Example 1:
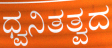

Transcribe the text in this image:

ಧ್ವನಿತತ್ವದ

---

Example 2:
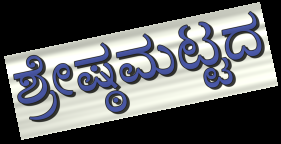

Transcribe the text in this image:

ಶ್ರೇಷ್ಠಮಟ್ಟದ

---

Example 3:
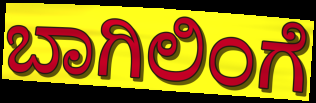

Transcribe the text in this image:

ಬಾಗಿಲಿಂಗೆ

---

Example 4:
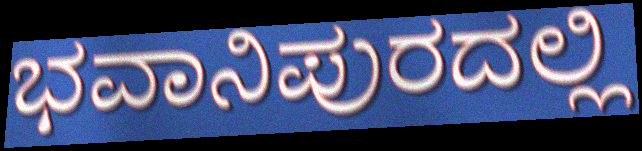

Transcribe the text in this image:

ಭವಾನಿಪುರದಲ್ಲಿ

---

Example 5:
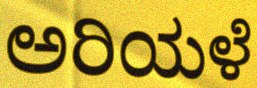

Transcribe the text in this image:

ಅರಿಯಳೆ